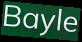
Bayle